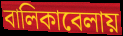
বালিকাবেলায়